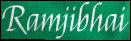
Ramjibhai